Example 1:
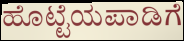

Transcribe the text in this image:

ಹೊಟ್ಟೆಯಪಾಡಿಗೆ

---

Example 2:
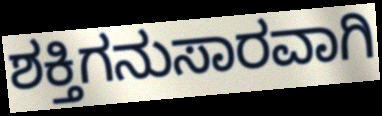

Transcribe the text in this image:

ಶಕ್ತಿಗನುಸಾರವಾಗಿ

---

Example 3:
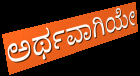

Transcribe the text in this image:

ಅರ್ಥವಾಗಿಯೇ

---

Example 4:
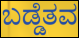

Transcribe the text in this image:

ಬಡ್ಡೆತವ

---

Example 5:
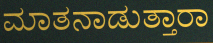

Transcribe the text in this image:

ಮಾತನಾಡುತ್ತಾರಾ